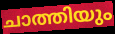
ചാത്തിയും